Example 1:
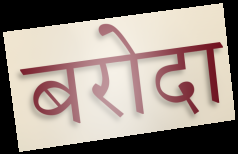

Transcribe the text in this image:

बरोदा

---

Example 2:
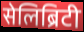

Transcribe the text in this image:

सेलिब्रिटी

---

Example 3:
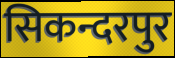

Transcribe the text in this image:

सिकन्दरपुर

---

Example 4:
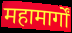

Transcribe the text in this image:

महामार्गों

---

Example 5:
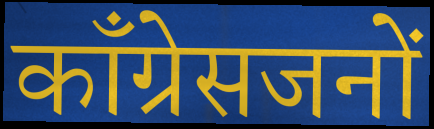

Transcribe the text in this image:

कॉंग्रेसजनों